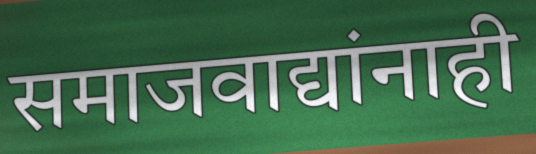
समाजवाद्यांनाही